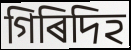
গিৰিদিহ